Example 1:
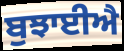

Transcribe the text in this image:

ਬੁਝਾਈਐ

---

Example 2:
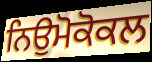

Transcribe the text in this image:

ਨਿਉਮੋਕੋਕਲ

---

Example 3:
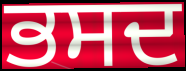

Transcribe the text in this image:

ਭਸਦ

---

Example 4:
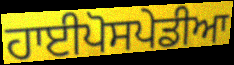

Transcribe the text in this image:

ਹਾਈਪੋਸਪੇਡੀਆ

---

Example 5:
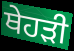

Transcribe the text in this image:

ਥੇਹੜੀ